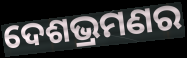
ଦେଶଭ୍ରମଣର